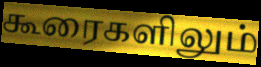
கூரைகளிலும்